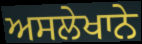
ਅਸਲੇਖਾਨੇ